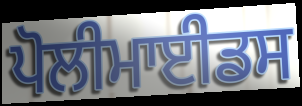
ਪੋਲੀਮਾਈਡਸ